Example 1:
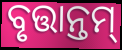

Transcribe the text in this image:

ବୃତ୍ତାନ୍ତମ୍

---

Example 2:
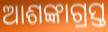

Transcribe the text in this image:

ଆଶଙ୍କାଗ୍ରସ୍ତ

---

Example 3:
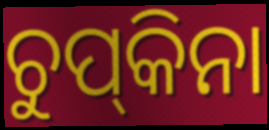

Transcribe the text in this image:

ଚୁପ୍‌କିନା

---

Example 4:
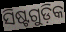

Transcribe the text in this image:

ସିଷ୍ଟଗୁଡ଼ିକ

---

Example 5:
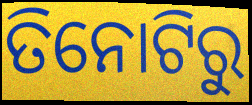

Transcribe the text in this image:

ତିନୋଟିରୁ